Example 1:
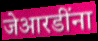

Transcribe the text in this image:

जेआरडींना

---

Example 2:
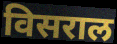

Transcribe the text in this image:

विसराल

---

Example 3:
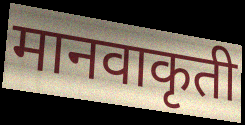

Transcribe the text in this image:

मानवाकृती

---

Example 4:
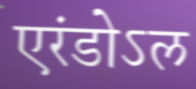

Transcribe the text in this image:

एरंडोऽल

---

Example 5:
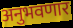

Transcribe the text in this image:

अनुभवणार